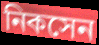
নিকসেন